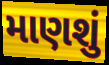
માણશું